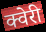
क्वेरी